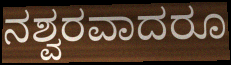
ನಶ್ವರವಾದರೂ